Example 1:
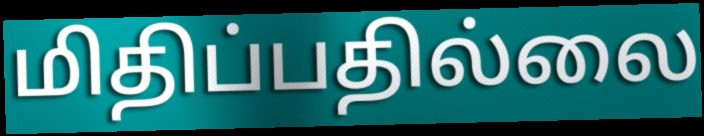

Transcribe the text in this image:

மிதிப்பதில்லை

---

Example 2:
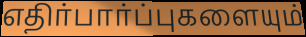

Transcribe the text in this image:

எதிர்பார்ப்புகளையும்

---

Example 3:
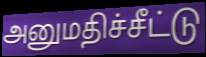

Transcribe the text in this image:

அனுமதிச்சீட்டு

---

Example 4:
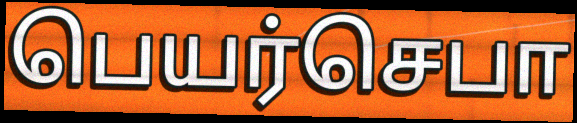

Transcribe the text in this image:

பெயர்செபா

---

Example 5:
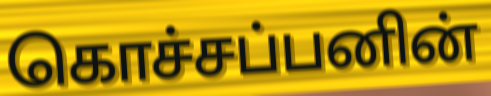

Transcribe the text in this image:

கொச்சப்பனின்